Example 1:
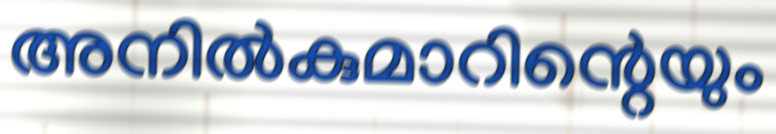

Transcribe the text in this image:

അനിൽകുമാറിന്റെയും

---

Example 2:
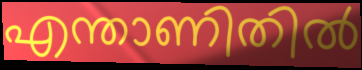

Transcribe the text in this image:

എന്താണിതിൽ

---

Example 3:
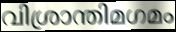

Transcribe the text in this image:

വിശ്രാന്തിമഗമം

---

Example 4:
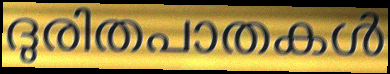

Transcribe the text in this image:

ദുരിതപാതകൾ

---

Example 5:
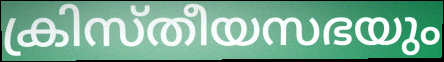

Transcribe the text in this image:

ക്രിസ്തീയസഭയും